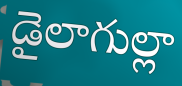
డైలాగుల్లా